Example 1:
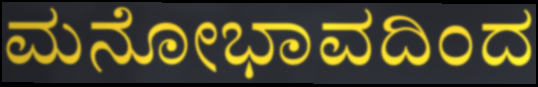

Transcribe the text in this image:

ಮನೋಭಾವದಿಂದ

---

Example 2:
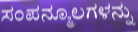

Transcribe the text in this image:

ಸಂಪನ್ಮೂಲಗಳನ್ನು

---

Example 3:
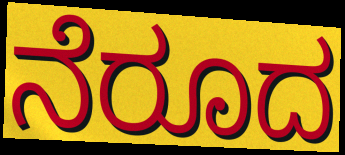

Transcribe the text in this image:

ನೆರೂದ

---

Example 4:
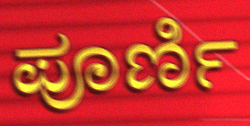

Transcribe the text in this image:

ಪೂರ್ಣಿ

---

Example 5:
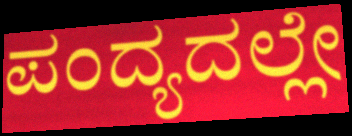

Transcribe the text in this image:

ಪಂದ್ಯದಲ್ಲೇ